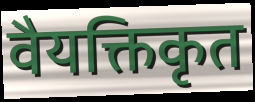
वैयक्तिकृत